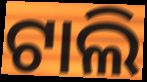
ଟାଲି